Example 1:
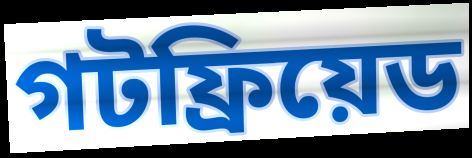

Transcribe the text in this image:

গটফ্রিয়েড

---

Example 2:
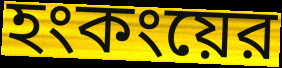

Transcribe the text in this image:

হংকংয়ের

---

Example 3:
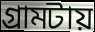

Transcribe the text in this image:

গ্রামটায়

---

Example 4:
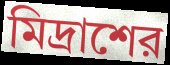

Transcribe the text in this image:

মিদ্রাশের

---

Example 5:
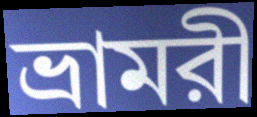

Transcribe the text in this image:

ভ্রামরী